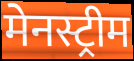
मेनस्ट्रीम